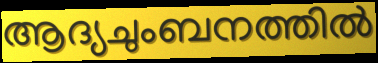
ആദ്യചുംബനത്തിൽ